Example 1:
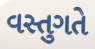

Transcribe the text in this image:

વસ્તુગતે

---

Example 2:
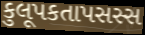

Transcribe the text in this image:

કુલૂપકતાપસસ્સ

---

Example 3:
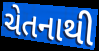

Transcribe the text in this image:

ચેતનાથી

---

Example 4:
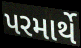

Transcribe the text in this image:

પરમાર્થે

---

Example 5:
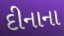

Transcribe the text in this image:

દીનાના